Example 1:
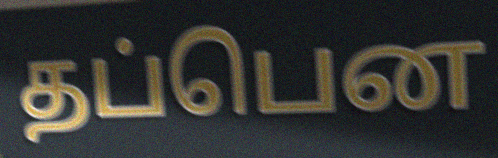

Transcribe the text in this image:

தப்பென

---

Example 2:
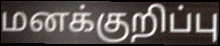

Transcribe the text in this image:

மனக்குறிப்பு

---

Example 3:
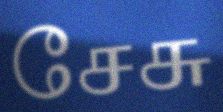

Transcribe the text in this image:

சேசு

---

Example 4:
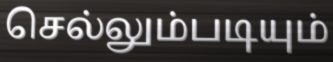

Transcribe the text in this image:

செல்லும்படியும்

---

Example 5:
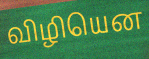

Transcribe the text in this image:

விழியென